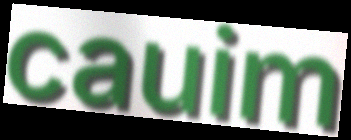
cauim